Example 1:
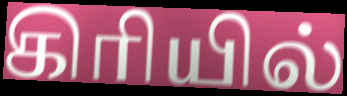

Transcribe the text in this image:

கிரியில்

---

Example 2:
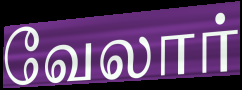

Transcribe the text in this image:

வேலார்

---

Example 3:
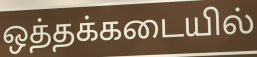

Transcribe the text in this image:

ஒத்தக்கடையில்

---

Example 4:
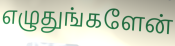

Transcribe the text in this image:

எழுதுங்களேன்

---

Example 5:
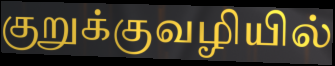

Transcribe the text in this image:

குறுக்குவழியில்